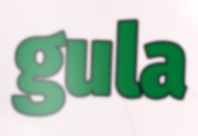
gula